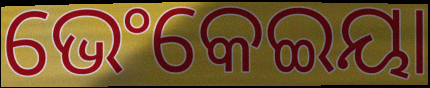
ଭେଂକେଇୟା